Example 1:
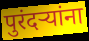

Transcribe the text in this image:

पुरंदऱ्यांना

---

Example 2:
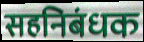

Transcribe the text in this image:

सहनिबंधक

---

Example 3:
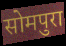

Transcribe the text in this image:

सोमपुरा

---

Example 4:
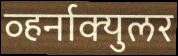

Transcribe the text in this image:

व्हर्नाक्युलर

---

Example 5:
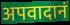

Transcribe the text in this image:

अपवादानं